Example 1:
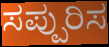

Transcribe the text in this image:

ಸಪ್ಪುರಿಸ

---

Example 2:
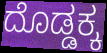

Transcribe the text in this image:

ದೊಡ್ಡಕ್ಕ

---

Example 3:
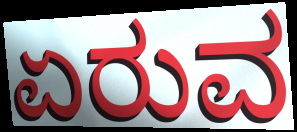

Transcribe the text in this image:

ಏರುವ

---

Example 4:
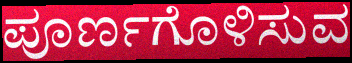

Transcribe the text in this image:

ಪೂರ್ಣಗೊಳಿಸುವ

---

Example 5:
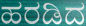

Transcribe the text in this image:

ಹರಡಿದ